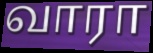
வாரா